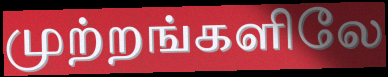
முற்றங்களிலே